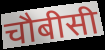
चौबीसी